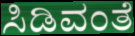
ಸಿಡಿವಂತೆ